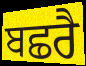
ਬਛਰੈ